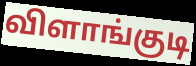
விளாங்குடி